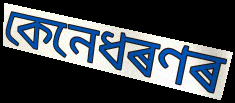
কেনেধৰণৰ